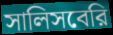
সালিসবেরি